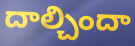
దాల్చిందా